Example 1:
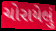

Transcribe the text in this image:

ચોરાયેલું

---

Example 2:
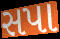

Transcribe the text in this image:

સપા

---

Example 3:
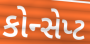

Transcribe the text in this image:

કોન્સેપ્ટ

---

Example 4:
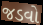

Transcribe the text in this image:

જડવો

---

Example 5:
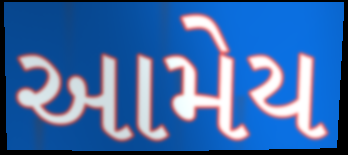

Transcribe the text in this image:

આમેય